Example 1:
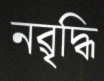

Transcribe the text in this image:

নৱৃদ্ধি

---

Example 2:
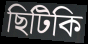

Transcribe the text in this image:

ছিটিকি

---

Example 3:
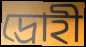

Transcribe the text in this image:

দ্ৰোহী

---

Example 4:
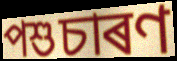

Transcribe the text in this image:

পশুচাৰণ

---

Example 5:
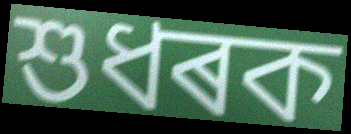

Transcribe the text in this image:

শুধৰক